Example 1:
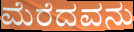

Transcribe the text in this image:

ಮೆರೆದವನು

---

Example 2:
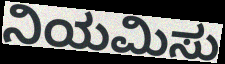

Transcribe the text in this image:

ನಿಯಮಿಸು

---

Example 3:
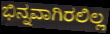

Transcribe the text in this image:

ಭಿನ್ನವಾಗಿರಲಿಲ್ಲ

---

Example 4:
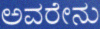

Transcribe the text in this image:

ಅವರೇನು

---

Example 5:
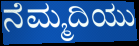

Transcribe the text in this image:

ನೆಮ್ಮದಿಯು